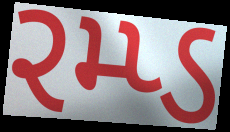
રમ્પ્ડ